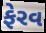
ફેરવ